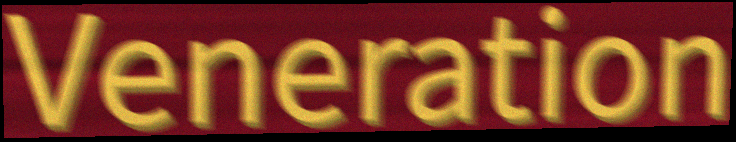
Veneration